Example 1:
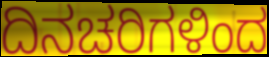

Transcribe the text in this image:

ದಿನಚರಿಗಳಿಂದ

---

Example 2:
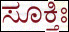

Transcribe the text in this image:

ಸೂಕ್ತಿಃ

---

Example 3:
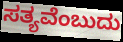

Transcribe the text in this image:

ಸತ್ಯವೆಂಬುದು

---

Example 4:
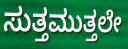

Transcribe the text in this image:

ಸುತ್ತಮುತ್ತಲೇ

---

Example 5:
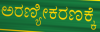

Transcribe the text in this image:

ಅರಣ್ಯೀಕರಣಕ್ಕೆ